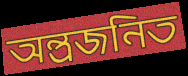
অন্ত্রজনিত